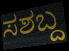
ಸಶಬ್ದ